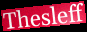
Thesleff